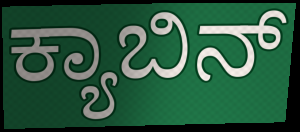
ಕ್ಯಾಬಿನ್